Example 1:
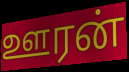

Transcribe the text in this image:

ஊரன்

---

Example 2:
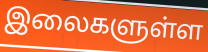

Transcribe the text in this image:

இலைகளுள்ள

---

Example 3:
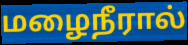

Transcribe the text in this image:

மழைநீரால்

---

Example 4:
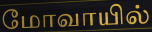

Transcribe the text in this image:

மோவாயில்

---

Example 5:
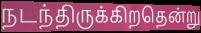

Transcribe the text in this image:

நடந்திருக்கிறதென்று